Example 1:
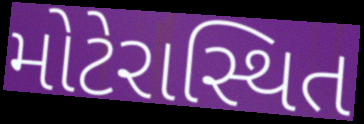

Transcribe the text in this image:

મોટેરાસ્થિત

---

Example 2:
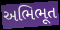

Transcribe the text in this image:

અભિભૂત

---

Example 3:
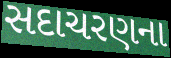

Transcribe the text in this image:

સદાચરણના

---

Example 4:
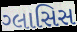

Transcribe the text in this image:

ગ્લાસિસ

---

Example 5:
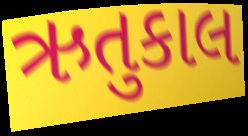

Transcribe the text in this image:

ઋતુકાલ